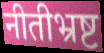
नीतीभ्रष्ट